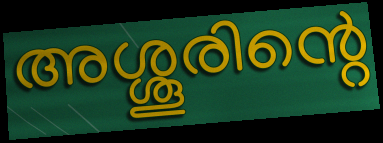
അശ്ശൂരിന്റെ